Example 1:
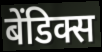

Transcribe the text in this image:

बेंडिक्स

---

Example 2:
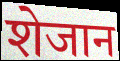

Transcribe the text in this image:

शेजान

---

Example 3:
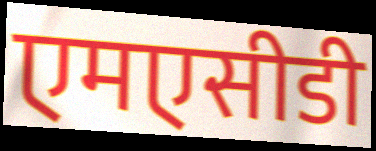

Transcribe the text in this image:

एमएसीडी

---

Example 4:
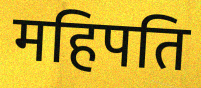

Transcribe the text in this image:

महिपति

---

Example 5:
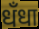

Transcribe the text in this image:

धँधा